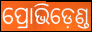
ପ୍ରୋଭିଡ଼େଣ୍ଡ